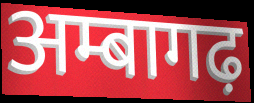
अम्बागढ़